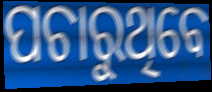
ପଚାରୁଥିବେ